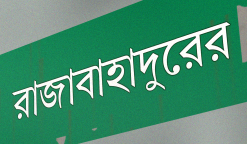
রাজাবাহাদুরের